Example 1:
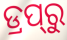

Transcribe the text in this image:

ଡ୍ରପ୍‍ରୁ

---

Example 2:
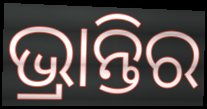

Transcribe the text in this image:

ଭ୍ରାନ୍ତିର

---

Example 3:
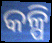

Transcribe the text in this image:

କଳ୍ପି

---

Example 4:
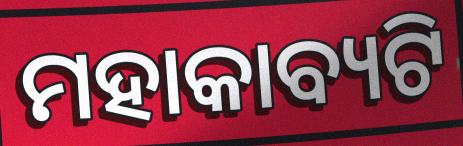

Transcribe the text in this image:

ମହାକାବ୍ୟଟି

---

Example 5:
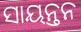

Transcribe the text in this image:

ସାୟନ୍ତନ